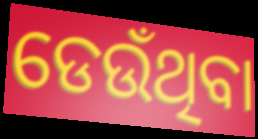
ଡେଉଁଥିବା